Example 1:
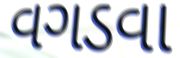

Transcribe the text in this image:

વગડવા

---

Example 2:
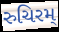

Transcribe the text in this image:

રુચિરમ્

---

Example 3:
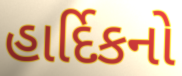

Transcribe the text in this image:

હાર્દિકનો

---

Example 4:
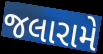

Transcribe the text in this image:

જલારામે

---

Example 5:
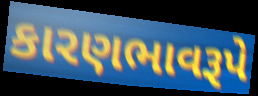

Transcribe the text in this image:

કારણભાવરૂપે